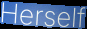
Herself